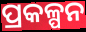
ପ୍ରକଳ୍ପନ